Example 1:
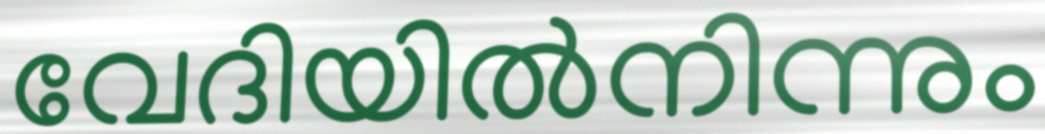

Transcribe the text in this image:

വേദിയിൽനിന്നും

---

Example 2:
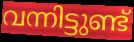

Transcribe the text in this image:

വന്നിട്ടുണ്ട്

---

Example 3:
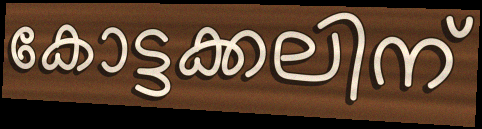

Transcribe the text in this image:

കോട്ടക്കലിന്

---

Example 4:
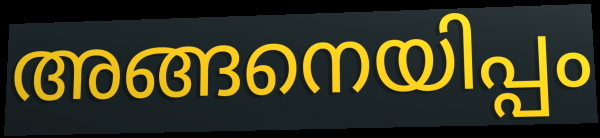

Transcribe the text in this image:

അങ്ങനെയിപ്പം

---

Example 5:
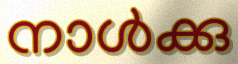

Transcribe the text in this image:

നാൾക്കു